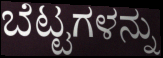
ಬೆಟ್ಟಗಳನ್ನು